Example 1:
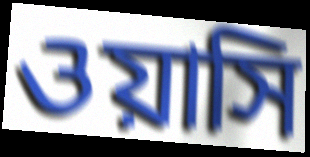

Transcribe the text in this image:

ওয়াসি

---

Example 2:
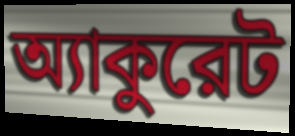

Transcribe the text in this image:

অ্যাকুরেট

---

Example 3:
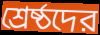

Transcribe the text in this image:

শ্রেষ্ঠদের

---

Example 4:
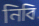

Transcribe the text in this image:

নিবি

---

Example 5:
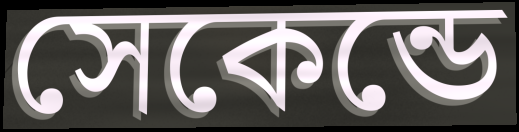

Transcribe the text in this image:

সেকেন্ডে